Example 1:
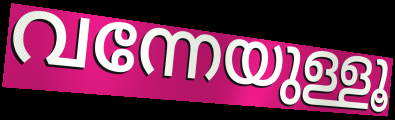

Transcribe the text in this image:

വന്നേയുള്ളൂ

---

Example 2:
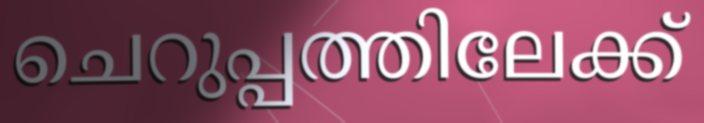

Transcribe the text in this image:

ചെറുപ്പത്തിലേക്ക്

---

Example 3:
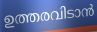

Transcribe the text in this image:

ഉത്തരവിടാൻ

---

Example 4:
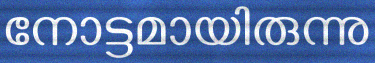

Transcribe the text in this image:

നോട്ടമായിരുന്നു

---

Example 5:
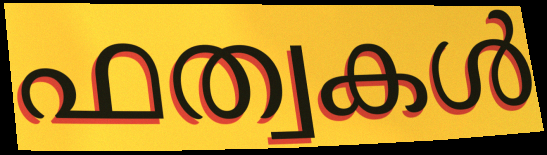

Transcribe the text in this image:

ഫത്വകൾ